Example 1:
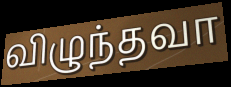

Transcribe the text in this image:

விழுந்தவா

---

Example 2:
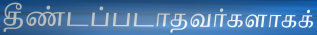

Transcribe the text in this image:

தீண்டப்படாதவர்களாகக்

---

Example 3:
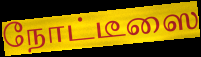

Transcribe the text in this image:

நோட்டீஸை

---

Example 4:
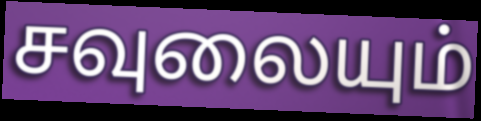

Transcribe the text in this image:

சவுலையும்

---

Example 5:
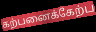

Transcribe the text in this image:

கற்பனைக்கேற்ப